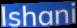
Ishani